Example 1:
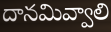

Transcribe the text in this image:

దానమివ్వాలి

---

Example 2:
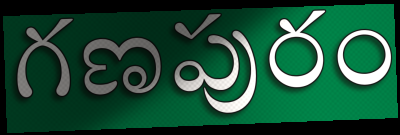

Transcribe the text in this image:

గణపురం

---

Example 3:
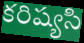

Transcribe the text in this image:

కరిష్యసి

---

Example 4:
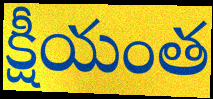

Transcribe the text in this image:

క్షీయంత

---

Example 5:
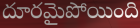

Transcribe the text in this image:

దూరమైపోయింది